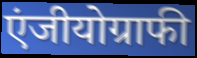
एंजीयोग्राफी